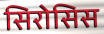
सिरोसिस